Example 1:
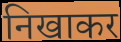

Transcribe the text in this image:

निखाकर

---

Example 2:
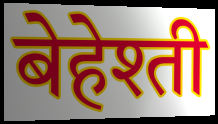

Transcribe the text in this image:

बेहेश्ती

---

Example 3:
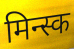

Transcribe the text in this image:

मिन्स्क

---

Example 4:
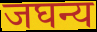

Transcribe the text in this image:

जघन्‍य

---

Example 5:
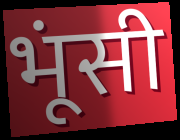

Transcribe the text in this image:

भूंसी